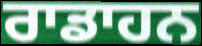
ਰਾਡਾਹਨ